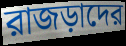
রাজড়াদের